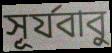
সূর্যবাবু